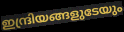
ഇന്ദ്രിയങ്ങളുടേയും